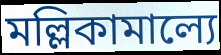
মল্লিকামাল্যে